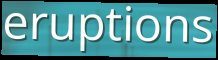
eruptions